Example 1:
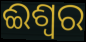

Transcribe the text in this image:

ଈଶ୍ଵର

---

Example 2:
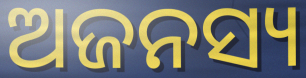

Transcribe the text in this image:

ଅଜନସ୍ୟ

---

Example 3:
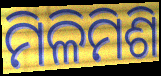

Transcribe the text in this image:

ମିଳିମିଶି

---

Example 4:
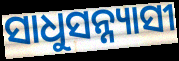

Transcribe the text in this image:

ସାଧୁସନ୍ନ୍ୟାସୀ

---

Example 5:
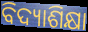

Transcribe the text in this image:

ବିଦ୍ୟାଶିକ୍ଷା